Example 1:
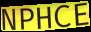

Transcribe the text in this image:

NPHCE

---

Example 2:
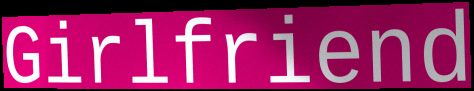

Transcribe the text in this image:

Girlfriend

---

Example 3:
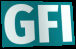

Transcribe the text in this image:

GFI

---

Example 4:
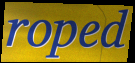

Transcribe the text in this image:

roped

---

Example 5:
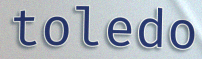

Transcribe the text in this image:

toledo